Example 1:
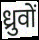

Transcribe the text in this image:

ध्रुवों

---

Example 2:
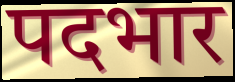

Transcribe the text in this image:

पदभार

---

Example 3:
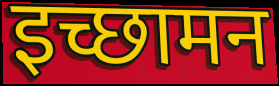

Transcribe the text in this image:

इच्छामन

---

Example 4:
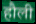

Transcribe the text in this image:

हौली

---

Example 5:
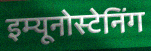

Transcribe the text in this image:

इम्यूनोस्टेनिंग